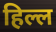
हिल्ल